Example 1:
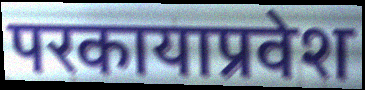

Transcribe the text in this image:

परकायाप्रवेश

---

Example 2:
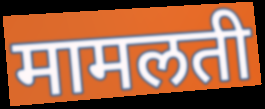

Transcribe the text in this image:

मामलती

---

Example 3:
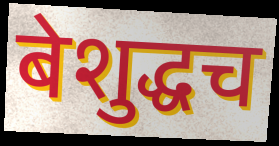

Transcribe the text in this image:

बेशुद्धच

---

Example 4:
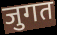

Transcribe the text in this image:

जुगत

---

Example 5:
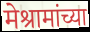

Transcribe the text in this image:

मेश्रामांच्या